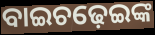
ବାଇଚଢ଼େଇଙ୍କ